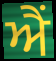
ਐਂ